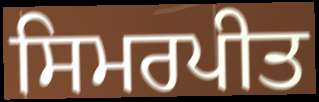
ਸਿਮਰਪੀਤ